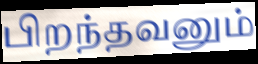
பிறந்தவனும்